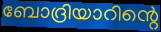
ബോദ്രിയാറിന്റെ